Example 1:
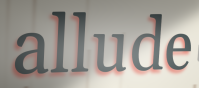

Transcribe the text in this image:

allude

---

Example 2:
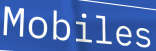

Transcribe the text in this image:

Mobiles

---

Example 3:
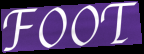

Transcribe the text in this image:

FOOT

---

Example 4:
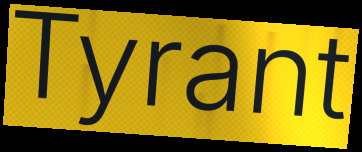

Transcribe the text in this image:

Tyrant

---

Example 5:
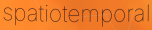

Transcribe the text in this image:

spatiotemporal